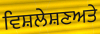
ਵਿਸ਼ਲੇਸ਼ਣਅਤੇ